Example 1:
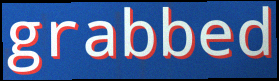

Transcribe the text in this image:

grabbed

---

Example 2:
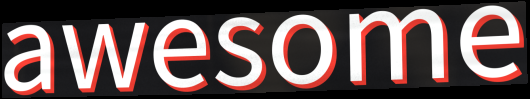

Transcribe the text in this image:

awesome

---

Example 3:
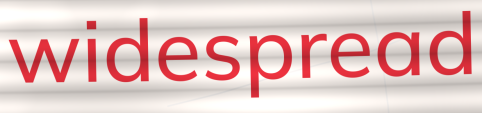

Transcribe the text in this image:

widespread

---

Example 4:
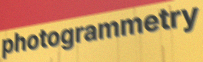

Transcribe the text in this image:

photogrammetry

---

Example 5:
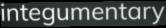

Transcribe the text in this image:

integumentary